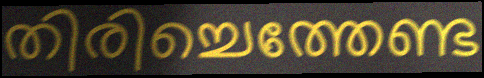
തിരിച്ചെത്തേണ്ട